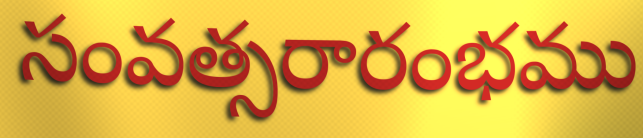
సంవత్సరారంభము